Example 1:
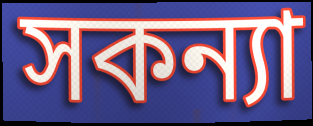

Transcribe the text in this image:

সকন্যা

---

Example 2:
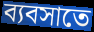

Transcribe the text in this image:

ব্যবসাতে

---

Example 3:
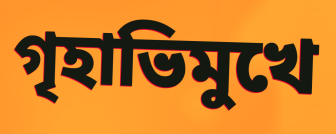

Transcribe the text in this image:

গৃহাভিমুখে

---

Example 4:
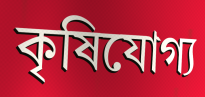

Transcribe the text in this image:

কৃষিযোগ্য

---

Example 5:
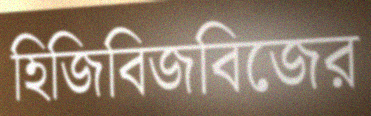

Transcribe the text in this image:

হিজিবিজবিজের